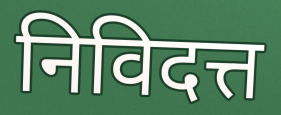
निविदत्त